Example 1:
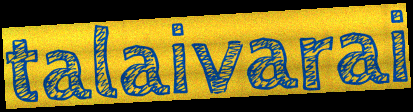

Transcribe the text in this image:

talaivarai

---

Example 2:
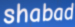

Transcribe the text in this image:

shabad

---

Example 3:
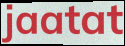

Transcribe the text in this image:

jaatat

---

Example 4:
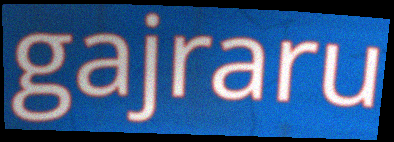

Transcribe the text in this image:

gajraru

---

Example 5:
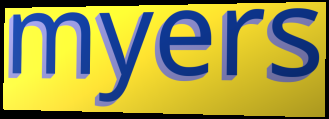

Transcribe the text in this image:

myers